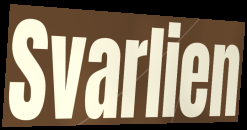
Svarlien